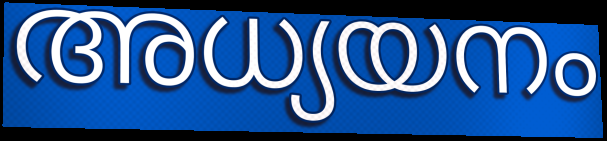
അധ്യയനം